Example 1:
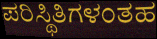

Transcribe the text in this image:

ಪರಿಸ್ಥಿತಿಗಳಂತಹ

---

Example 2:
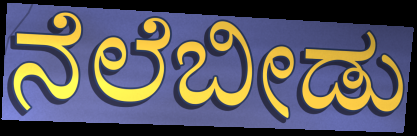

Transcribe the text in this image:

ನೆಲೆಬೀಡು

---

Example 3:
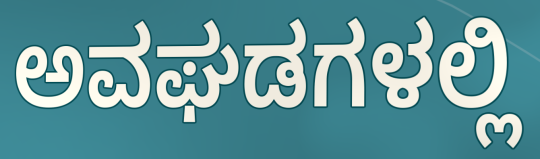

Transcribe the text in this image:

ಅವಘಡಗಳಲ್ಲಿ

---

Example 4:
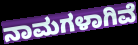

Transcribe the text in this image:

ನಾಮಗಳಾಗಿವೆ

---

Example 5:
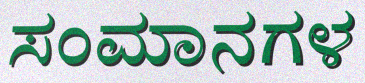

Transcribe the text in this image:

ಸಂಮಾನಗಳ